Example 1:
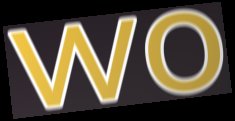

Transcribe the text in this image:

wo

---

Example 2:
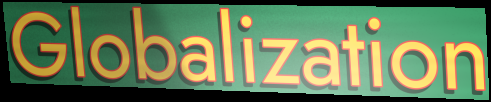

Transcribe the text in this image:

Globalization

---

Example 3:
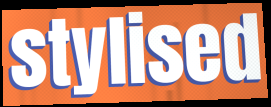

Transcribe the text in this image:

stylised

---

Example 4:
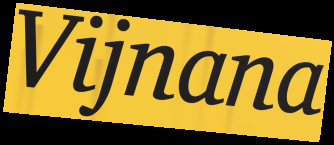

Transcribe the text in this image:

Vijnana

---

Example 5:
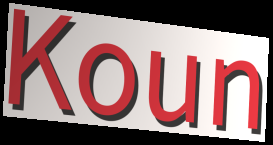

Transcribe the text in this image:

Koun